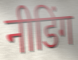
नीडिंग